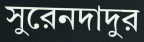
সুরেনদাদুর